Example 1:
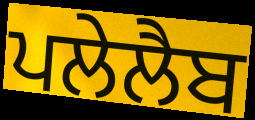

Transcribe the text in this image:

ਪਲੇਲੈਬ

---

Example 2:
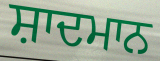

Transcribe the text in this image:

ਸ਼ਾਦਮਾਨ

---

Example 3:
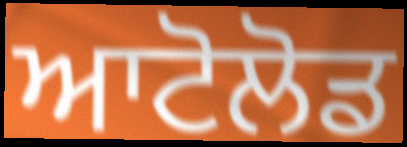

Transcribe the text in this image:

ਆਟੋਲੋਡ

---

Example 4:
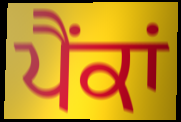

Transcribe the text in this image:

ਪੈਂਕਾਂ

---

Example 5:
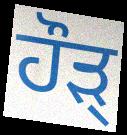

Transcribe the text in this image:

ਹੌੜ੍